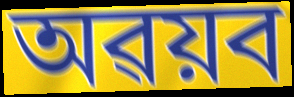
অৱয়ব